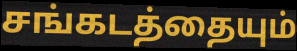
சங்கடத்தையும்